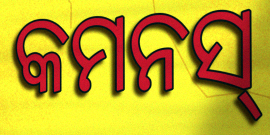
କମନସ୍